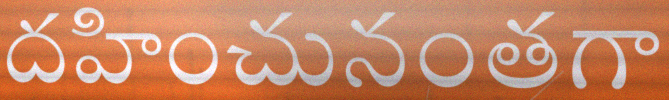
దహించునంతగా